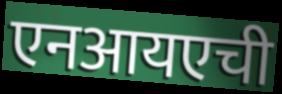
एनआयएची